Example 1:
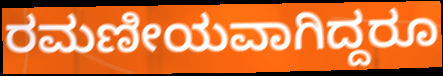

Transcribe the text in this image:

ರಮಣೀಯವಾಗಿದ್ದರೂ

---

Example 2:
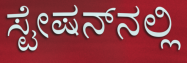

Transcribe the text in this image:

ಸ್ಟೇಷನ್‌ನಲ್ಲಿ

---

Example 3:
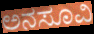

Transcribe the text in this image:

ಅನಸೂವಿ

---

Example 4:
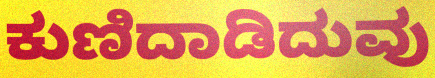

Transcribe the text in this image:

ಕುಣಿದಾಡಿದುವು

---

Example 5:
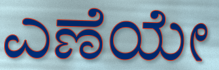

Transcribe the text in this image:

ಎಣೆಯೇ